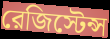
রেজিস্টেন্স